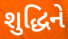
શુદ્ધિને